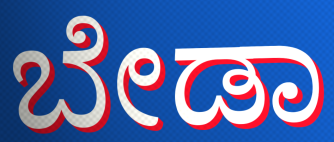
ಬೇಡಾ